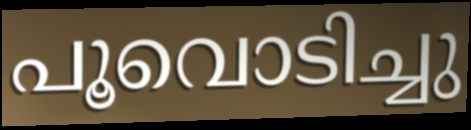
പൂവൊടിച്ചു